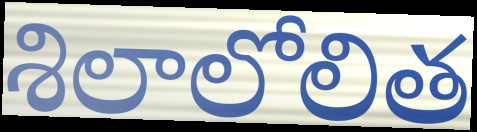
శిలాలోలిత